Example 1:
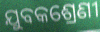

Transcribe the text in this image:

ଯୁବକଶ୍ରେଣୀ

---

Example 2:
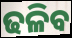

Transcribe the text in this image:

ଢଳିବ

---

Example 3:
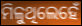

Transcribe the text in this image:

ମିଳୁଥିଲେହେଁ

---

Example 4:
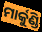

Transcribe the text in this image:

ମାର୍କୁଣ୍ଡି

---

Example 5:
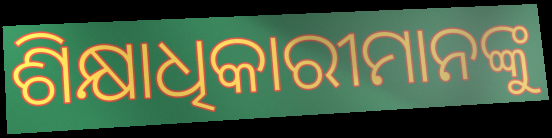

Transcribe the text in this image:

ଶିକ୍ଷାଧିକାରୀମାନଙ୍କୁ